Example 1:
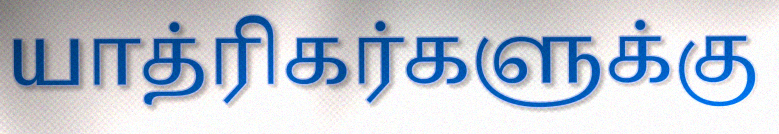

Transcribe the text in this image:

யாத்ரிகர்களுக்கு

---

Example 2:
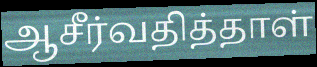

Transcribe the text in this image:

ஆசீர்வதித்தாள்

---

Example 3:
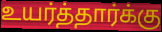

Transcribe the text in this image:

உயர்த்தார்க்கு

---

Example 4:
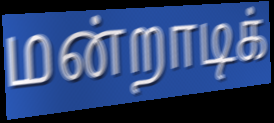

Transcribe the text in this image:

மன்றாடிக்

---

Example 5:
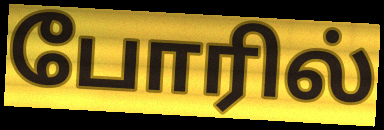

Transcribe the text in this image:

போரில்